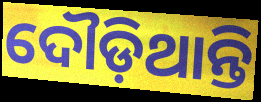
ଦୌଡ଼ିଥାନ୍ତି